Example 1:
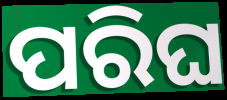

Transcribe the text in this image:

ପରିଘ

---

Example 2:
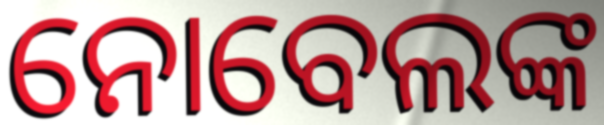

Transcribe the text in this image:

ନୋବେଲଙ୍କ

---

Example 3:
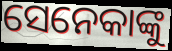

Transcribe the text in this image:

ସେନେକାଙ୍କୁ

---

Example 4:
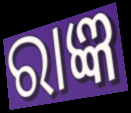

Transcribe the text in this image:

ରାଜ୍ଞ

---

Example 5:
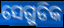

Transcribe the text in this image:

ସେଗୁଡିକ